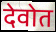
देवोत